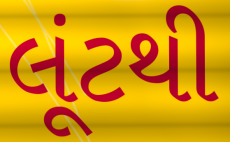
લૂંટથી